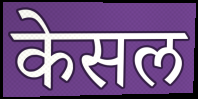
केसल